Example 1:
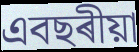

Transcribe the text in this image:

এবছৰীয়া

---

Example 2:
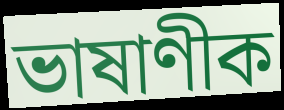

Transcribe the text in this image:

ভাষাণীক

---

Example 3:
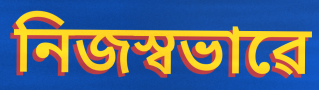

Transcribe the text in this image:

নিজস্বভাৱে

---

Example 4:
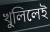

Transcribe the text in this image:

খুলিলেই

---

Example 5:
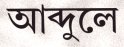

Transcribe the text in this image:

আব্দুলে